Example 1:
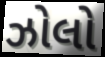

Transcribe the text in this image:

ઝોલો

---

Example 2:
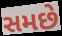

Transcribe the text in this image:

સમછે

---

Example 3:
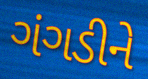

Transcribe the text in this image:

ગંગડીને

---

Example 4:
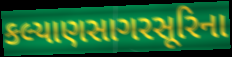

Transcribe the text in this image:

કલ્યાણસાગરસૂરિના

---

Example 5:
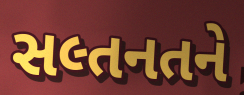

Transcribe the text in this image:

સલ્તનતને